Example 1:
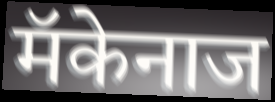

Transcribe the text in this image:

मॅकेनाज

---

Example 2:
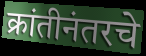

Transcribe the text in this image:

क्रांतीनंतरचे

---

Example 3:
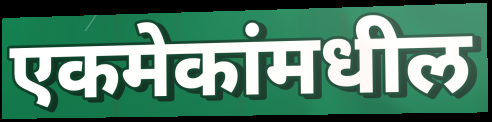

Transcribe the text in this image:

एकमेकांमधील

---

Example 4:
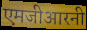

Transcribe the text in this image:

एमजीआरनी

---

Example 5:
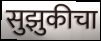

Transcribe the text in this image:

सुझुकीचा